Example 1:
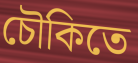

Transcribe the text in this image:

চৌকিতে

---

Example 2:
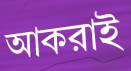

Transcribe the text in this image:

আকরাই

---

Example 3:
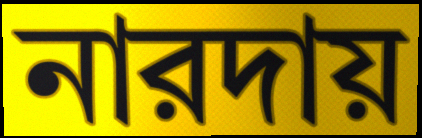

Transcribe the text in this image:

নারদায়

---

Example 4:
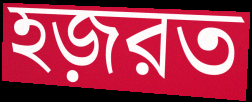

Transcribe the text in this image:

হজ়রত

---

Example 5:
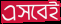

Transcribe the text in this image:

এসবেই